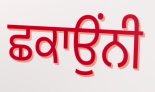
ਛਕਾਉਂਨੀ